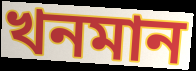
খনমান